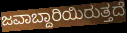
ಜವಾಬ್ದಾರಿಯಿರುತ್ತದೆ